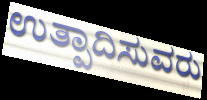
ಉತ್ಪಾದಿಸುವರು